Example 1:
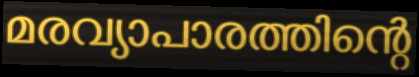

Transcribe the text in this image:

മരവ്യാപാരത്തിന്റെ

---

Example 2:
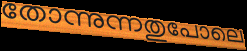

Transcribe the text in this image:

തോന്നുന്നതുപോലെ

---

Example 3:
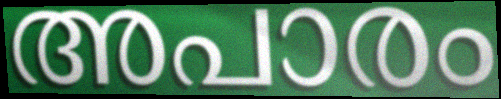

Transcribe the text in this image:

അപാരം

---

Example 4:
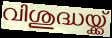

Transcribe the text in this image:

വിശുദ്ധയ്ക്ക്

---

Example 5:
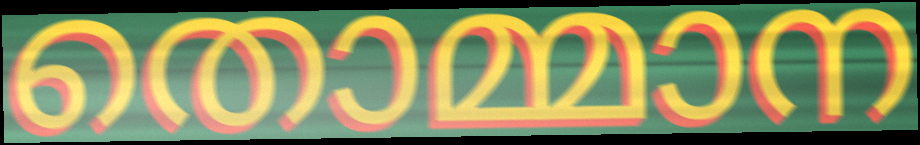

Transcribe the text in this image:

തൊമ്മാന